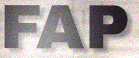
FAP